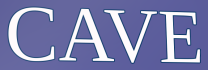
CAVE